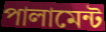
পালামেন্ট